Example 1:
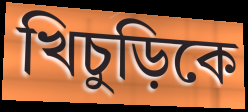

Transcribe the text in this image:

খিচুড়িকে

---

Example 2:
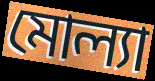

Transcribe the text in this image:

মোল্যা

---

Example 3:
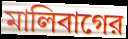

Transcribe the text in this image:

মালিবাগের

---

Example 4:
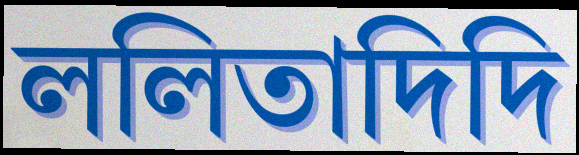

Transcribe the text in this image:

ললিতাদিদি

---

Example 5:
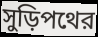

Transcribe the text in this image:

সুড়িপথের